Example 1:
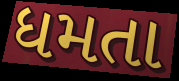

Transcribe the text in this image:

ધમતા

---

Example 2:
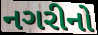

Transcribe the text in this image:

નગરીનો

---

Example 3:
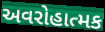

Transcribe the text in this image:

અવરોહાત્મક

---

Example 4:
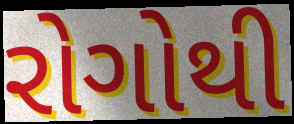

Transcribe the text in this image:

રોગોથી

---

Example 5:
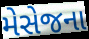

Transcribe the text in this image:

મેસેજના